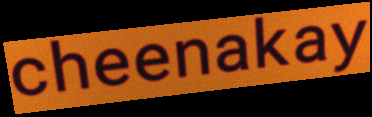
cheenakay